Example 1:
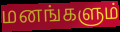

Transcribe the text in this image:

மனங்களும்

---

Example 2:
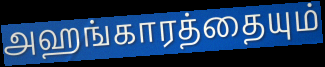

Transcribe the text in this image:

அஹங்காரத்தையும்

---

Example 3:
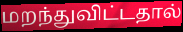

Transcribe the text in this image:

மறந்துவிட்டதால்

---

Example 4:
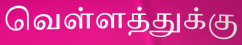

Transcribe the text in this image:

வெள்ளத்துக்கு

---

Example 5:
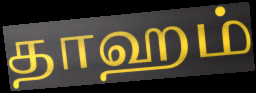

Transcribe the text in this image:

தாஹம்